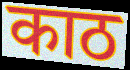
काठ